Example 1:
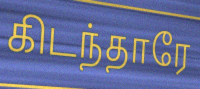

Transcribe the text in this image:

கிடந்தாரே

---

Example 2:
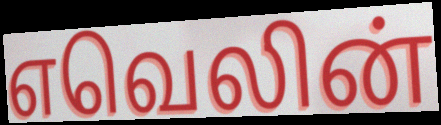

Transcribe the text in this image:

எவெலின்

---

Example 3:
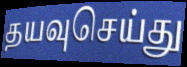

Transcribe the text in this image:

தயவுசெய்து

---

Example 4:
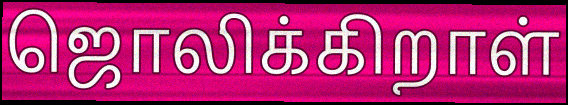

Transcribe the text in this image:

ஜொலிக்கிறாள்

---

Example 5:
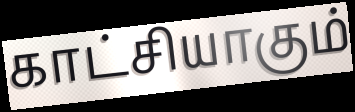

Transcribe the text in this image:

காட்சியாகும்